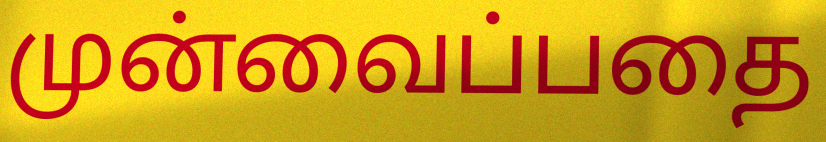
முன்வைப்பதை